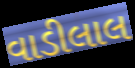
વાડીલાલ